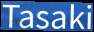
Tasaki